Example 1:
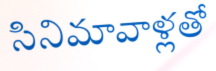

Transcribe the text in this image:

సినిమావాళ్లతో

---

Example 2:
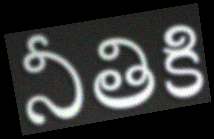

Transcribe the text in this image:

నీతికి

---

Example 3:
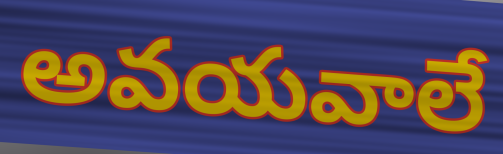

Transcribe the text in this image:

అవయవాలే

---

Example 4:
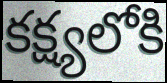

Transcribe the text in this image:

కక్ష్యలోకి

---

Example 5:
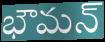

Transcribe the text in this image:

భౌమన్